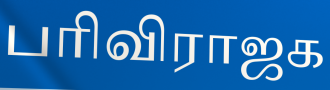
பரிவிராஜக